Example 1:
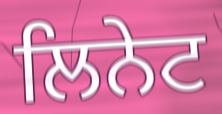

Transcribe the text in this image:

ਲਿਨੇਟ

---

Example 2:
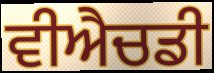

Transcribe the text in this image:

ਵੀਐਚਡੀ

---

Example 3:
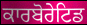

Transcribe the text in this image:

ਕਾਰਬੋਰੇਟਿਡ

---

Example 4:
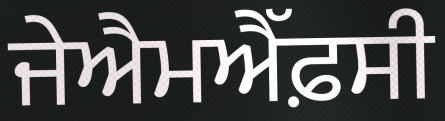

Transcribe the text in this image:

ਜੇਐਮਐੱਫ਼ਸੀ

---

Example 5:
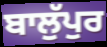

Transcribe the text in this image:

ਬਾਲੁੱਪੁਰ